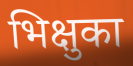
भिक्षुका